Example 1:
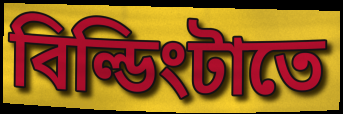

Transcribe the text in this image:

বিল্ডিংটাতে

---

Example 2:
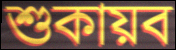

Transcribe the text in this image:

শুকায়ব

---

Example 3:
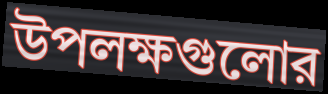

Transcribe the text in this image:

উপলক্ষগুলোর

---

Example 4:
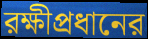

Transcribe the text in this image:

রক্ষীপ্রধানের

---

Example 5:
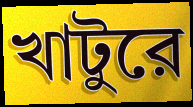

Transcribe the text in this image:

খাটুরে